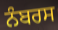
ਨੰਬਰਸ